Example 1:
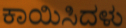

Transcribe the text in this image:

ಕಾಯಿಸಿದಳು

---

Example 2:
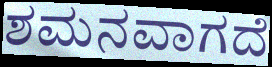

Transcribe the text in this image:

ಶಮನವಾಗದೆ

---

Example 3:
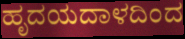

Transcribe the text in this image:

ಹೃದಯದಾಳದಿಂದ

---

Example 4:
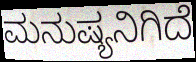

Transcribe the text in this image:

ಮನುಷ್ಯನಿಗಿದೆ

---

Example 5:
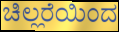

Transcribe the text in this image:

ಚಿಲ್ಲರೆಯಿಂದ